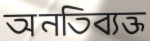
অনতিব্যক্ত